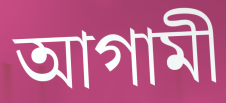
আগামী